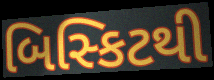
બિસ્કિટથી